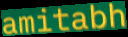
amitabh